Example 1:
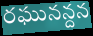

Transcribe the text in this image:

రఘునన్దన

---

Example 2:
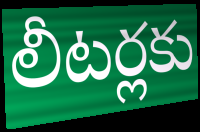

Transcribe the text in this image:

లీటర్లకు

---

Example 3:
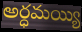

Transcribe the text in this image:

అర్ధమయ్యి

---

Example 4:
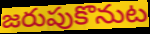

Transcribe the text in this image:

జరుపుకొనుట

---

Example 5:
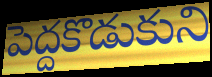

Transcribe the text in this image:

పెద్దకొడుకుని